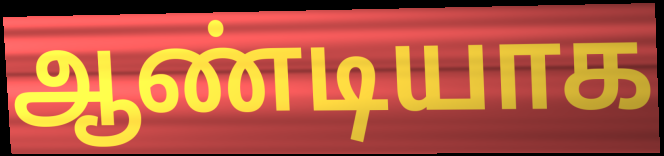
ஆண்டியாக